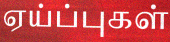
ஏய்ப்புகள்